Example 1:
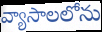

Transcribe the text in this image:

వ్యాసాలలోను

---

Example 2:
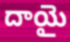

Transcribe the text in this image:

దాయై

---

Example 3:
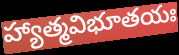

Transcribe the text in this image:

హ్యాత్మవిభూతయః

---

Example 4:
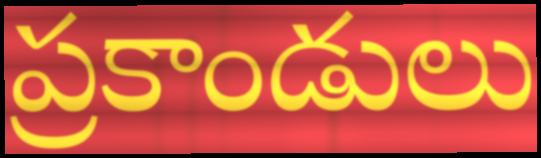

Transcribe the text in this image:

ప్రకాండులు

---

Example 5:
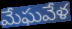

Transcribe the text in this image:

మేఘవేళ